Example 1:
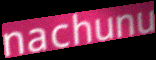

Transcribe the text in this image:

nachunu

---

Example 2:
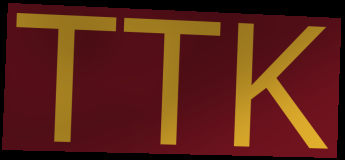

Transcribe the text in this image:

TTK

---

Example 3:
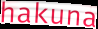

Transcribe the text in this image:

hakuna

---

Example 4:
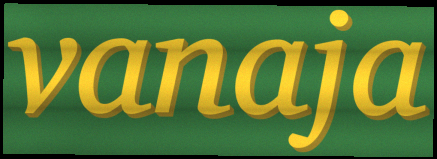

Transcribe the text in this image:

vanaja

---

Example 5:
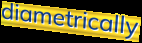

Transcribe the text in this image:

diametrically